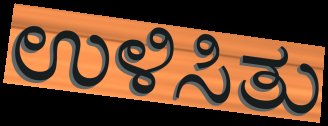
ಉಳಿಸಿತು